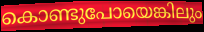
കൊണ്ടുപോയെങ്കിലും